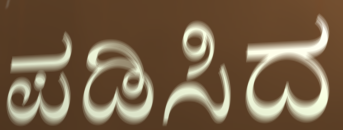
ಪಡಿಸಿದ